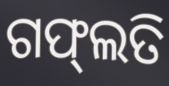
ଗଫ୍‌ଲତି